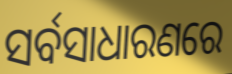
ସର୍ବସାଧାରଣରେ